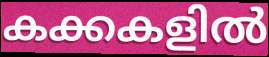
കക്കകളിൽ